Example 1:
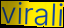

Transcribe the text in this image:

virali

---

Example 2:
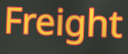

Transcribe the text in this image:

Freight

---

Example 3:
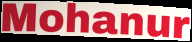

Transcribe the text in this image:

Mohanur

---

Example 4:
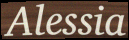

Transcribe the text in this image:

Alessia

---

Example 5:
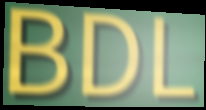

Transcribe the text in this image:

BDL